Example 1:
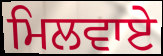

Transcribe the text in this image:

ਮਿਲਵਾਏ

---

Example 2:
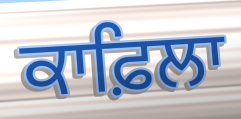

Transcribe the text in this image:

ਕਾਫ਼ਿਲਾ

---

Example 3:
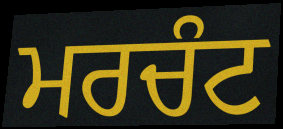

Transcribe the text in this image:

ਮਰਚੰਟ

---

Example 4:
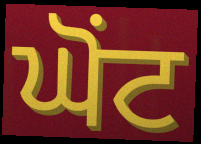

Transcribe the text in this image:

ਘੋਂਟ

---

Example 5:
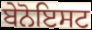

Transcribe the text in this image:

ਬੇਨੋਇਸਟ